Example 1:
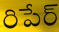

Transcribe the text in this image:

రిపేర్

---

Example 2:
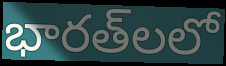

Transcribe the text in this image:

భారత్‌లలో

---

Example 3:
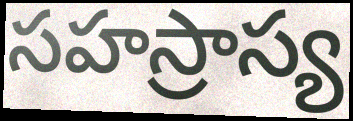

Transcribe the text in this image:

సహస్రాస్య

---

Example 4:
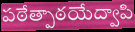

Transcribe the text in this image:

పఠేత్పాఠయేద్వాపి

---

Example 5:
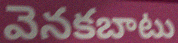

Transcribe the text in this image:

వెనకబాటు